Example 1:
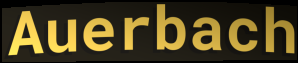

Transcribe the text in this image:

Auerbach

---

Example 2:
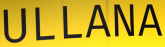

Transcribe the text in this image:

ULLANA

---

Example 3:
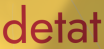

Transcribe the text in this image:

detat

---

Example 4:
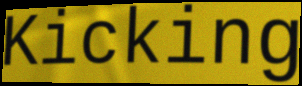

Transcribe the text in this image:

Kicking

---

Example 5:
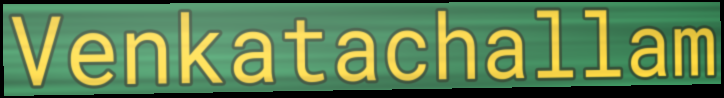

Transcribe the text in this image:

Venkatachallam